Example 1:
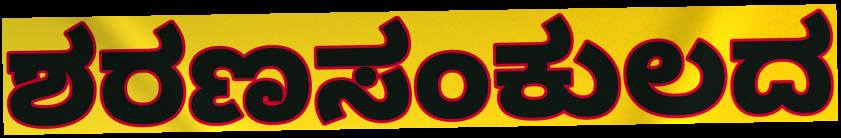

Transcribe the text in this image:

ಶರಣಸಂಕುಲದ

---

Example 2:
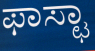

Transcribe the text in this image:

ಫಾಸ್ಟಾ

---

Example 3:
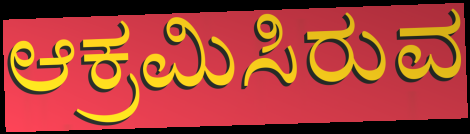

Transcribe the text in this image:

ಆಕ್ರಮಿಸಿರುವ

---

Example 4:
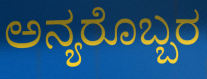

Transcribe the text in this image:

ಅನ್ಯರೊಬ್ಬರ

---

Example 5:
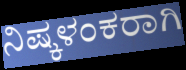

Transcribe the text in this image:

ನಿಷ್ಕಳಂಕರಾಗಿ